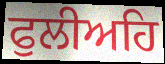
ਫੁਲੀਅਹਿ